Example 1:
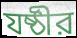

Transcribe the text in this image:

যষ্ঠীর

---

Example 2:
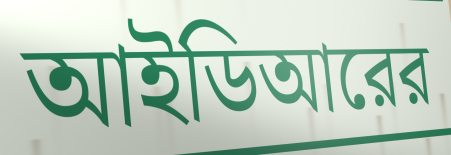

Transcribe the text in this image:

আইডিআরের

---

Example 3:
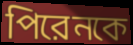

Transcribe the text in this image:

পিরেনকে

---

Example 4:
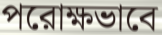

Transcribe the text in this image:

পরোক্ষভাবে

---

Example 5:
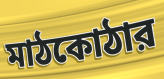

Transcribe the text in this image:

মাঠকোঠার